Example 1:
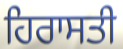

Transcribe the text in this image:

ਹਿਰਾਸਤੀ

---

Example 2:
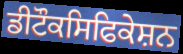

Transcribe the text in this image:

ਡੀਟੌਕਸਿਫਿਕੇਸ਼ਨ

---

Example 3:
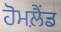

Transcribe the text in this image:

ਹੋਮਲ਼ੈਂਡ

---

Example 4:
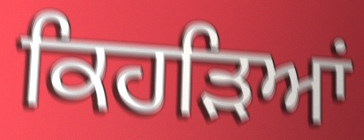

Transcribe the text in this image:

ਕਿਹੜਿਆਂ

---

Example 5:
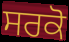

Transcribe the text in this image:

ਸਰਕੋ